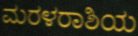
ಮರಳರಾಶಿಯ